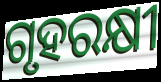
ଗୃହରକ୍ଷୀ